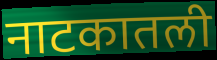
नाटकातली